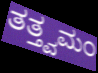
ತತ್ತ್ವಮಂ